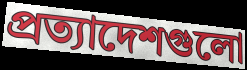
প্রত্যাদেশগুলো